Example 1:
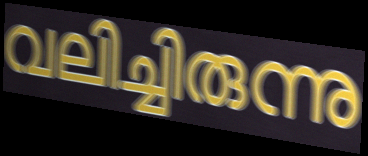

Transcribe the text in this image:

വലിച്ചിരുന്നു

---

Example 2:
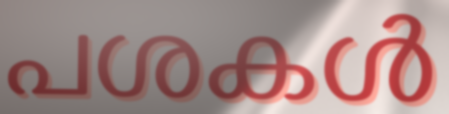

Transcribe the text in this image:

പശകൾ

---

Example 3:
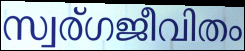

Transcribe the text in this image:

സ്വര്ഗജീവിതം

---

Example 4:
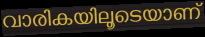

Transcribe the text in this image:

വാരികയിലൂടെയാണ്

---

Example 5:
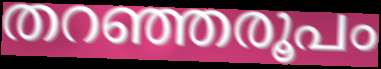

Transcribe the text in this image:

തറഞ്ഞരൂപം